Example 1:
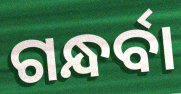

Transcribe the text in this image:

ଗନ୍ଧର୍ବା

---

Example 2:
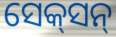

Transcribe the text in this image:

ସେକ୍‌ସନ୍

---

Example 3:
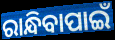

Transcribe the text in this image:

ରାନ୍ଧିବାପାଇଁ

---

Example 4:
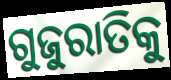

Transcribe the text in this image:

ଗୁଜୁରାତିକୁ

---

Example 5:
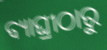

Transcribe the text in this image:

ବ୍ୟାଘ୍ରୀଠାରୁ